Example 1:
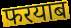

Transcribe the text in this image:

फरयाब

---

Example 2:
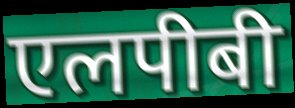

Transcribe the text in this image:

एलपीबी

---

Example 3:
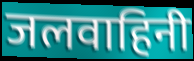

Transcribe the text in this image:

जलवाहिनी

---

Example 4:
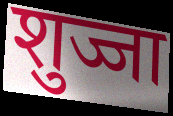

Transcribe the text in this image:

शुज्जा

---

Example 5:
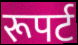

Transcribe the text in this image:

रूपर्ट